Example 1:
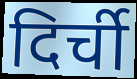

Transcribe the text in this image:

दिर्ची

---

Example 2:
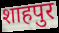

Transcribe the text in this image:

शाहपुर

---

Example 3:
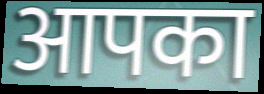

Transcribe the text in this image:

आपका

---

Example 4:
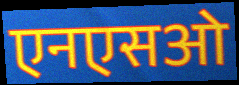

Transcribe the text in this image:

एनएसओ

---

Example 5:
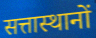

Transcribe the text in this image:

सत्तास्थानों